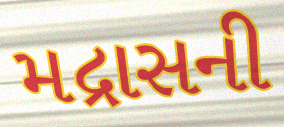
મદ્રાસની